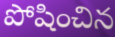
పోషించిన